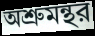
অশ্রুমন্থর